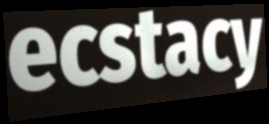
ecstacy